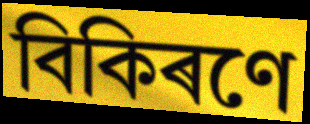
বিকিৰণে